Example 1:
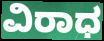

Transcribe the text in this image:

ವಿರಾಧ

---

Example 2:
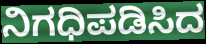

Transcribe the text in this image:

ನಿಗಧಿಪಡಿಸಿದ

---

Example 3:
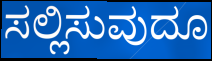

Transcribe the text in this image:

ಸಲ್ಲಿಸುವುದೂ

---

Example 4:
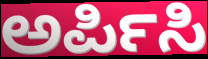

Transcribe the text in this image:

ಅರ್ಪಿಸಿ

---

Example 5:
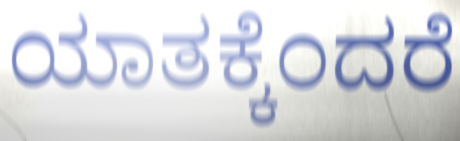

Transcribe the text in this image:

ಯಾತಕ್ಕೆಂದರೆ